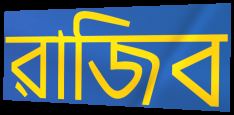
ৱাজিব